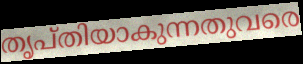
തൃപ്തിയാകുന്നതുവരെ